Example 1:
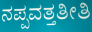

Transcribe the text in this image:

ನಪ್ಪವತ್ತತೀತಿ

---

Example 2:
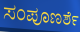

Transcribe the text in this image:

ಸಂಪೂಣರ್ಶೆ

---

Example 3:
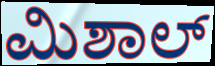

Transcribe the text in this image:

ಮಿಶಾಲ್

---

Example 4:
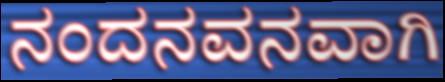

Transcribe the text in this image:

ನಂದನವನವಾಗಿ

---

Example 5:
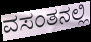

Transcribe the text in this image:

ವಸಂತನಲ್ಲಿ